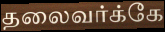
தலைவர்க்கே